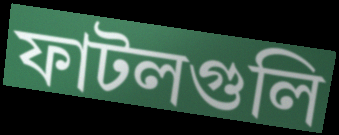
ফাটলগুলি